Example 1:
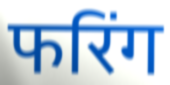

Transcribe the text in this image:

फरिंग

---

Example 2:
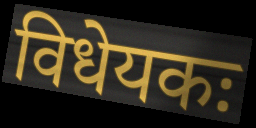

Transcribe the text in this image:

विधेयकः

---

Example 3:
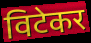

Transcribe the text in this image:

विटेकर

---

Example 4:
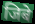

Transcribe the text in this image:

जिबे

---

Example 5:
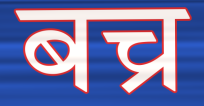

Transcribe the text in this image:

बच्र